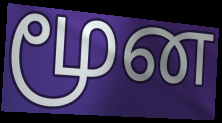
மூன